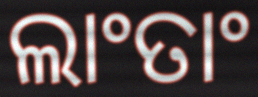
ଲାଂତାଂ